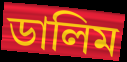
ডালিম